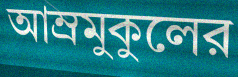
আম্রমুকুলের